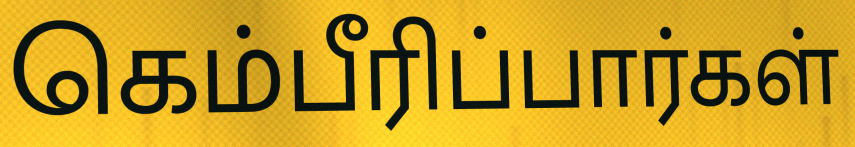
கெம்பீரிப்பார்கள்